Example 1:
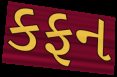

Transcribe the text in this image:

કફન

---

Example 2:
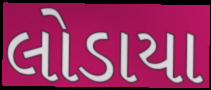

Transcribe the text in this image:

લોડાયા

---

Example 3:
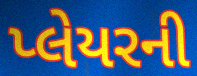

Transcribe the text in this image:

પ્લેયરની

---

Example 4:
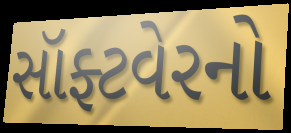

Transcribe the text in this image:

સૉફ્ટવેરનો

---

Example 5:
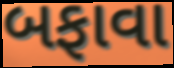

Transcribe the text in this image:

બફાવા